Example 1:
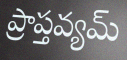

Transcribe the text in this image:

ప్రాప్తవ్యమ్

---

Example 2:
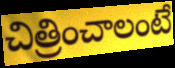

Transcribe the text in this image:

చిత్రించాలంటే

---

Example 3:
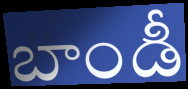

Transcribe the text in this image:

బాండీ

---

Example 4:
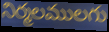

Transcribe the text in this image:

నిర్మలములగు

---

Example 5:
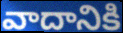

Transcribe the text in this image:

వాదానికి